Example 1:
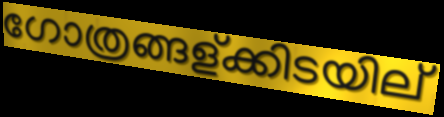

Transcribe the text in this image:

ഗോത്രങ്ങള്ക്കിടയില്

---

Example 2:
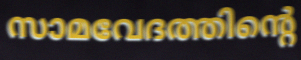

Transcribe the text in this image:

സാമവേദത്തിന്റെ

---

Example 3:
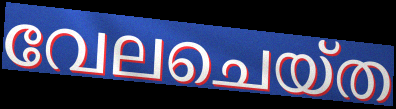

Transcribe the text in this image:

വേലചെയ്ത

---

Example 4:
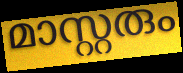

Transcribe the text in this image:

മാസ്റ്റരും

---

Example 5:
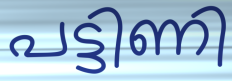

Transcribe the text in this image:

പട്ടിണി